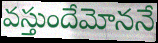
వస్తుందేమోననే